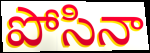
పోసినా